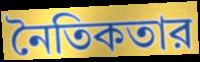
নৈতিকতার